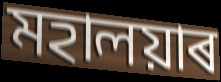
মহালয়াৰ